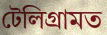
টেলিগ্ৰামত